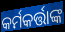
କର୍ମକର୍ତ୍ତାଙ୍କ